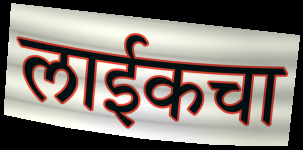
लाईकचा